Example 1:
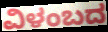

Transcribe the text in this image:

ವಿಳಂಬದ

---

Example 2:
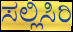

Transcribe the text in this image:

ಸಲ್ಲಿಸಿರಿ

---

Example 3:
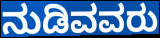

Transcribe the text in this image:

ನುಡಿವವರು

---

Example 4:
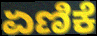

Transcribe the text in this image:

ಏಣಿಕೆ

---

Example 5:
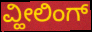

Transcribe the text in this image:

ವ್ಹೀಲಿಂಗ್